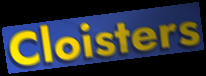
Cloisters